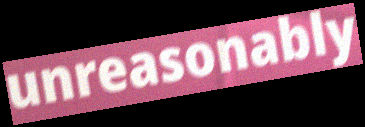
unreasonably